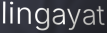
lingayat